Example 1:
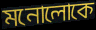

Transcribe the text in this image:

মনোলোকে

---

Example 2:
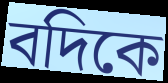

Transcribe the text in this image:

বদিকে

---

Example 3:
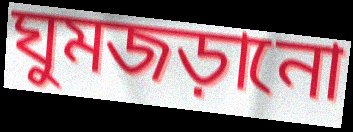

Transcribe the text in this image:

ঘুমজড়ানো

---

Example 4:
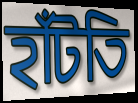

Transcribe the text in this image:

হাঁটতি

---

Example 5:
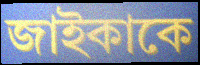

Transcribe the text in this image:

জাইকাকে